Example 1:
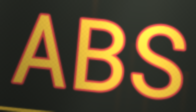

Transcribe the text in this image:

ABS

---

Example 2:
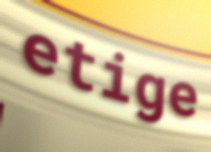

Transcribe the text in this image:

etige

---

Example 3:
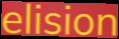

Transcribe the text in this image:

elision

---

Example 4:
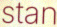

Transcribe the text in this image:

stan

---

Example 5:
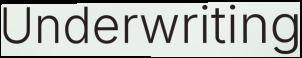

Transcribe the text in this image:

Underwriting